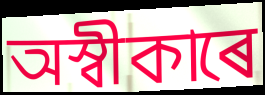
অস্বীকাৰে